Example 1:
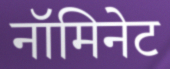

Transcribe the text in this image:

नॉमिनेट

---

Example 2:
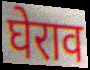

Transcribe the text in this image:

घेराव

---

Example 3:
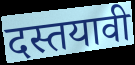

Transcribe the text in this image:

दस्तयावी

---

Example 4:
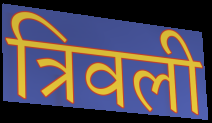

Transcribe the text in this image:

त्रिवली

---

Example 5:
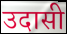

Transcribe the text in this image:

उदासी